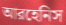
আরহেনিস